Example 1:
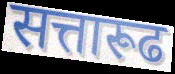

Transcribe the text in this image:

सत्तारूढ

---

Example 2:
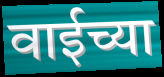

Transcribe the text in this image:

वाईच्या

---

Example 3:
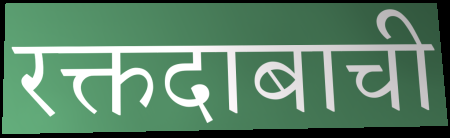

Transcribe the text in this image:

रक्तदाबाची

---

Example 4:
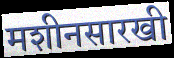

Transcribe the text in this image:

मशीनसारखी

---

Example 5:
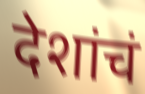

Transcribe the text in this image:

देशांचं